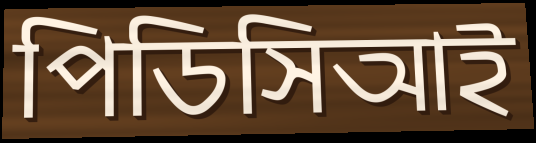
পিডিসিআই